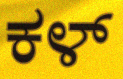
ಕಳ್